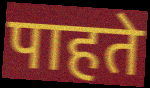
पाहते